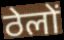
ठेलों